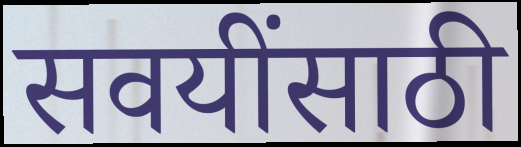
सवयींसाठी